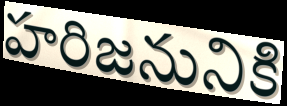
హరిజనునికి